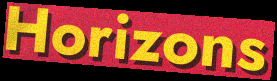
Horizons